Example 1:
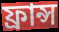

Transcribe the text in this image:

ফ্ৰান্স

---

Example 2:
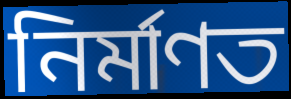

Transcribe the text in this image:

নিৰ্মাণত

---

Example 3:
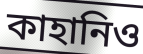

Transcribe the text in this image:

কাহানিও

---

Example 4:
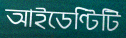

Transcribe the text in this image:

আইডেণ্টিটি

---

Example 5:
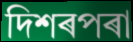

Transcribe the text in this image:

দিশৰপৰা